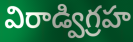
విరాడ్విగ్రహ